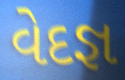
વેદજ્ઞ